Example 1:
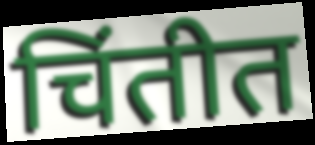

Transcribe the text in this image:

चिंतीत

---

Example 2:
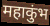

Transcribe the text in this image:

महाकुंभ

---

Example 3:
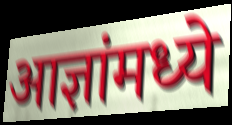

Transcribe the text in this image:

आज्ञांमध्ये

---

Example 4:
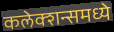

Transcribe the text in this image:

कलेक्शन्समध्ये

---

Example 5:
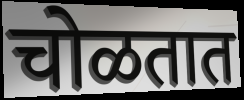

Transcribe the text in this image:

चोळतात